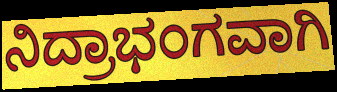
ನಿದ್ರಾಭಂಗವಾಗಿ